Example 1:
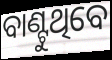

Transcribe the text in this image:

ବାଣ୍ଟୁଥିବେ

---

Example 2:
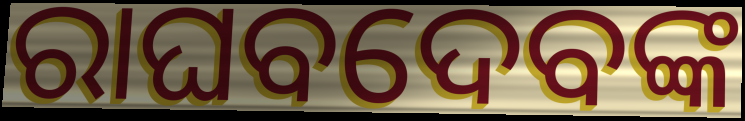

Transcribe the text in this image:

ରାଘବଦେବଙ୍କ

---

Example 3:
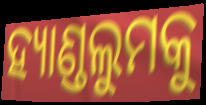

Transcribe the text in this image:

ହ୍ୟାଣ୍ଡଲୁମକୁ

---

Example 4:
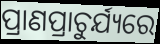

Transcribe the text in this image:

ପ୍ରାଣପ୍ରାଚୁର୍ଯ୍ୟରେ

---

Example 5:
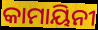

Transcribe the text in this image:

କାମାୟିନୀ